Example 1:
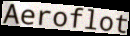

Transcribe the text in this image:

Aeroflot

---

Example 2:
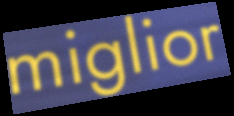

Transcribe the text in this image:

miglior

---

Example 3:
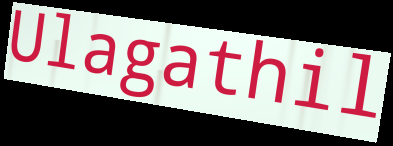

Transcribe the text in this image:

Ulagathil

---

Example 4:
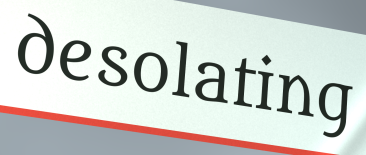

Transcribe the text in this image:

desolating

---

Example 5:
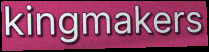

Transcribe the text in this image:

kingmakers